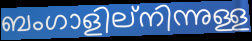
ബംഗാളില്നിന്നുള്ള